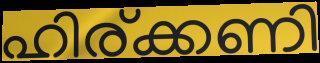
ഹിര്ക്കണി